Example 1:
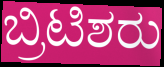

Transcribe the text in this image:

ಬ್ರಿಟಿಶರು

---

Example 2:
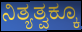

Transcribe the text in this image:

ನಿತ್ಯತ್ವಕ್ಕೂ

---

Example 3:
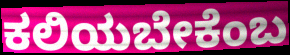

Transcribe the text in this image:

ಕಲಿಯಬೇಕೆಂಬ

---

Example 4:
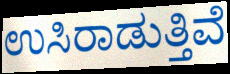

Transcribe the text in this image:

ಉಸಿರಾಡುತ್ತಿವೆ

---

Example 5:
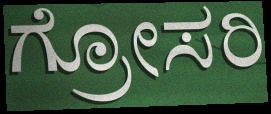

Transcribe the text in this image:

ಗ್ರೋಸರಿ